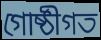
গোষ্ঠীগত